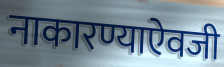
नाकारण्याऐवजी